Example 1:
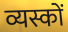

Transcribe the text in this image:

व्यस्कों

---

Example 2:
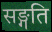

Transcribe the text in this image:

सङ्गति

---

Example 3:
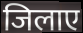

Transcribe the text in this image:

जिलाए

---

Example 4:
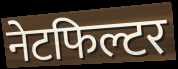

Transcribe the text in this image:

नेटफिल्टर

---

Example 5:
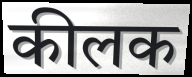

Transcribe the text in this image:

कीलक